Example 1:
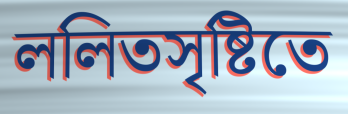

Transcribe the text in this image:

ললিতসৃষ্টিতে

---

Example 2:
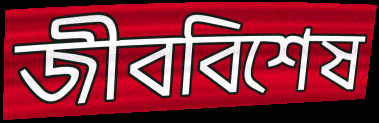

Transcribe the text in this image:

জীববিশেষ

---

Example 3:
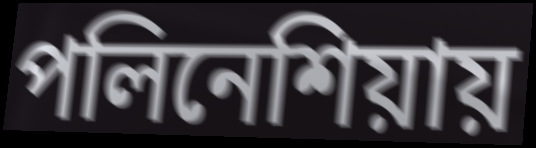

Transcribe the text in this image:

পলিনেশিয়ায়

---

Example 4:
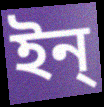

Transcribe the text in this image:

ইন্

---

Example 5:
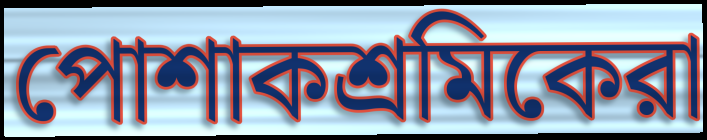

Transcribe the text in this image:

পোশাকশ্রমিকেরা